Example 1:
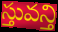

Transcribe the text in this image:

స్తువన్తి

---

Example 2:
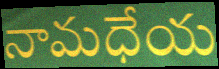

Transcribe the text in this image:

నామధేయ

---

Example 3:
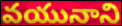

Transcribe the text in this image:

వయునాని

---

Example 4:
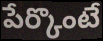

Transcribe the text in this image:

పేర్కొంటే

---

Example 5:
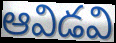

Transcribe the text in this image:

ఆవిడవి